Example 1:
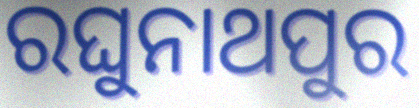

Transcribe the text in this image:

ରଘୁନାଥପୁର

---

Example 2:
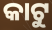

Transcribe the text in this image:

କାଟୁ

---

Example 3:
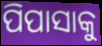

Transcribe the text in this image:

ପିପାସାକୁ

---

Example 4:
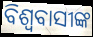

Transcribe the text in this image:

ବିଶ୍ଵବାସୀଙ୍କ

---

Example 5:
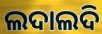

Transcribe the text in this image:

ଲଦାଲଦି